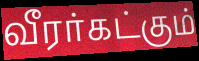
வீரர்கட்கும்